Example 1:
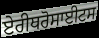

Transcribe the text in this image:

ਏਰੀਥਰੋਸਾਈਟਸ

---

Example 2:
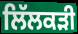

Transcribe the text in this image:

ਲਿੱਲਕੜੀ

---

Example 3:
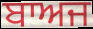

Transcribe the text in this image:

ਬਾਅਜ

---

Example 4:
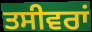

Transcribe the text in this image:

ਤਸੀਵਰਾਂ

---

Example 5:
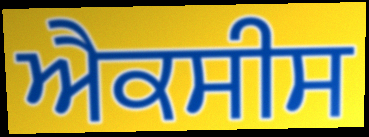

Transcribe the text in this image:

ਐਕਸੀਸ